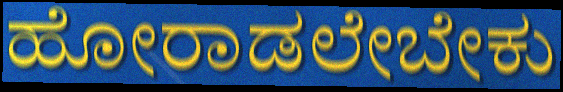
ಹೋರಾಡಲೇಬೇಕು